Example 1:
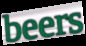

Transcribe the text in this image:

beers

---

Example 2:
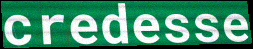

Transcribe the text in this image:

credesse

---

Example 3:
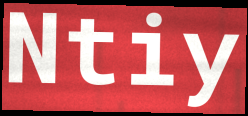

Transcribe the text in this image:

Ntiy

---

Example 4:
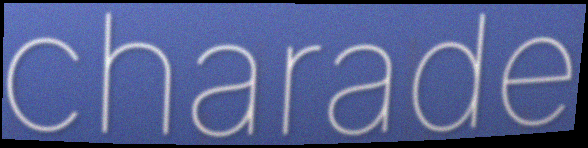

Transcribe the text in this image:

charade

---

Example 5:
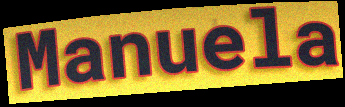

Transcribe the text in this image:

Manuela